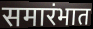
समारंभात